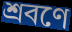
শ্রবণে